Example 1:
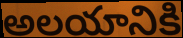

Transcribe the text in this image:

అలయానికి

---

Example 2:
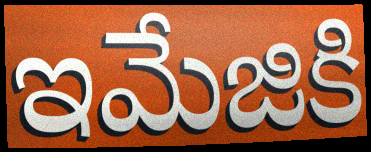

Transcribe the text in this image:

ఇమేజికి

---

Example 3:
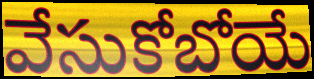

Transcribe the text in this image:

వేసుకోబోయే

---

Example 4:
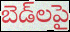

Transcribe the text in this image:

బెడ్‌లపై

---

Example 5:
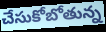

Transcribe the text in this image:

చేసుకోబోతున్న